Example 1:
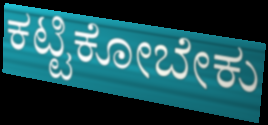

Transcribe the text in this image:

ಕಟ್ಟಿಕೋಬೇಕು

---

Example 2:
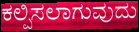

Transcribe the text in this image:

ಕಲ್ಪಿಸಲಾಗುವುದು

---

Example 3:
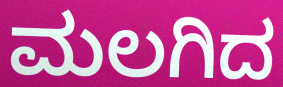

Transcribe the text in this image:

ಮಲಗಿದ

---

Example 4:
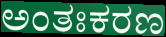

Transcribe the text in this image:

ಅಂತಃಕರಣ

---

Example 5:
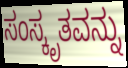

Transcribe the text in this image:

ಸಂಸ್ಕೃತವನ್ನು